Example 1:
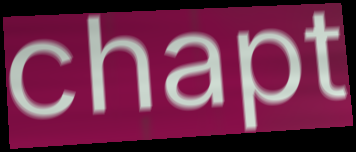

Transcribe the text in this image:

chapt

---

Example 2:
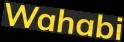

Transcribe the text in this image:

Wahabi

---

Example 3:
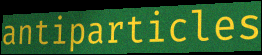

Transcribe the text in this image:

antiparticles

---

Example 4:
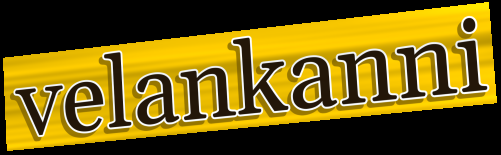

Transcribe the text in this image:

velankanni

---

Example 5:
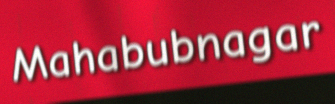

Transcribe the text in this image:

Mahabubnagar